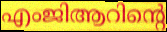
എംജിആറിന്റെ